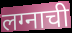
लग्नाची